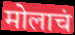
मोलाचं